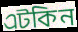
এটকিন